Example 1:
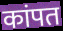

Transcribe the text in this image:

कांपत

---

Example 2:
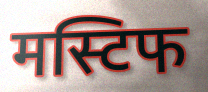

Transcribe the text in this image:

मस्टिफ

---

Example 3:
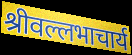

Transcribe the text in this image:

श्रीवल्लभाचार्य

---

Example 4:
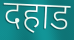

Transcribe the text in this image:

दहाड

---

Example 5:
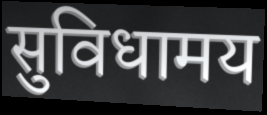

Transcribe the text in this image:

सुविधामय